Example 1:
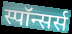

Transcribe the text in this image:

स्पॉन्सर्स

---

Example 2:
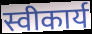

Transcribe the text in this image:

स्वीकार्य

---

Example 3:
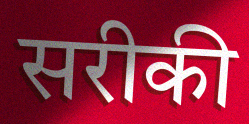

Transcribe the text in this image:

सरीकी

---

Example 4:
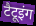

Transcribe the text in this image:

टैटूइंग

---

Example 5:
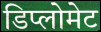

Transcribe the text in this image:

डिप्लोमेट